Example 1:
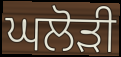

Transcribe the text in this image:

ਘਲੋਡ਼ੀ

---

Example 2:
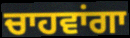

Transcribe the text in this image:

ਚਾਹਵਾਂਗਾ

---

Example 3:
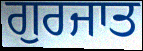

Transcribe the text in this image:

ਗੁਰਜਾਤ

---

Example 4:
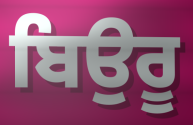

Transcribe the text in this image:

ਬਿਉਰੂ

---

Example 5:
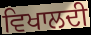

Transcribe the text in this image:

ਵਿਖਾਲਦੀ